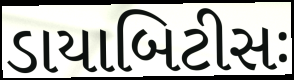
ડાયાબિટીસઃ